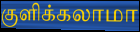
குளிக்கலாமா